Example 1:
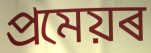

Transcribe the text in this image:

প্ৰমেয়ৰ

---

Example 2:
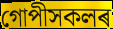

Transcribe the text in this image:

গোপীসকলৰ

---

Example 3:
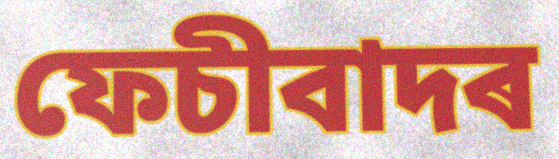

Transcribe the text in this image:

ফেচীবাদৰ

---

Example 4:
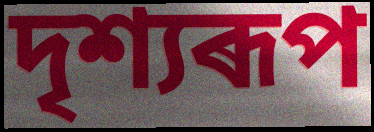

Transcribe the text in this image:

দৃশ্যৰূপ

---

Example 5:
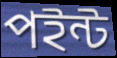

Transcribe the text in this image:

পইন্ট